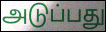
அடுப்பது